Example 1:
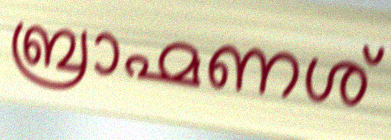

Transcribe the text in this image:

ബ്രാഹ്മണശ്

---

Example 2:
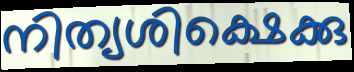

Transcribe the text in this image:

നിത്യശിക്ഷെക്കു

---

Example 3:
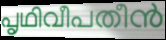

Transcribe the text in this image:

പൃഥിവീപതീൻ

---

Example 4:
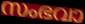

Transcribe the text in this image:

സംഭവാ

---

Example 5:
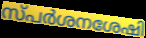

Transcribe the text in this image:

സ്പർശനശേഷി